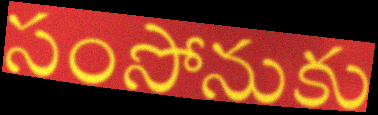
సంసోనుకు